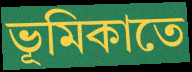
ভূমিকাতে